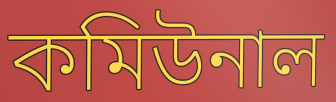
কমিউনাল